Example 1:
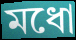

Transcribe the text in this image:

মধো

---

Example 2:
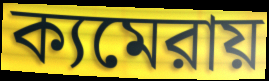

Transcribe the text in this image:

ক্যমেরায়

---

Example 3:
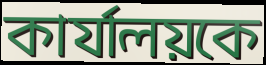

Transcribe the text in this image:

কার্যালয়কে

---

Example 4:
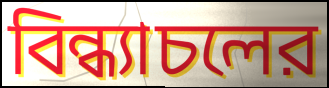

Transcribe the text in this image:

বিন্ধ্যাচলের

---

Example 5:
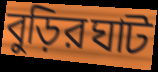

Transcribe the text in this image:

বুড়িরঘাট